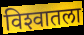
विश्‍वातला